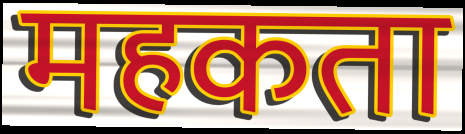
महकता